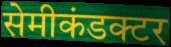
सेमीकंडक्टर